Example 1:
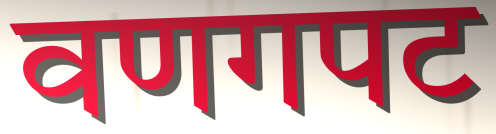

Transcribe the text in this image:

वणगपट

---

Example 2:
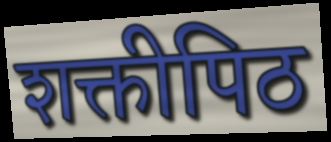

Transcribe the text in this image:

शक्तीपिठ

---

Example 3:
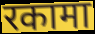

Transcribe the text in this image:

रकामा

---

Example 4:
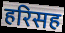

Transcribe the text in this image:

हरिसह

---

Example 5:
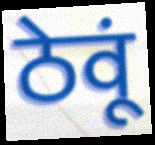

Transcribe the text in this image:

ठेवूं